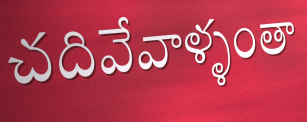
చదివేవాళ్ళంతా